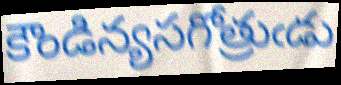
కౌండిన్యసగోత్రుఁడు